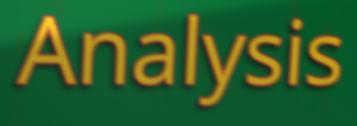
Analysis